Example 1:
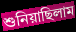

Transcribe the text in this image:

শুনিয়াছিলাম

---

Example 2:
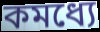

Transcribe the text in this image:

কমধ্যে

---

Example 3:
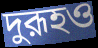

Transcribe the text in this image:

দুরূহও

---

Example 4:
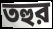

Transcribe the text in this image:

তহুর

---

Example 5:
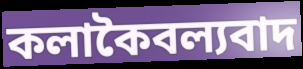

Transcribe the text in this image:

কলাকৈবল্যবাদ